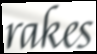
rakes